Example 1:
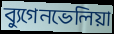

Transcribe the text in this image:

ব্যুগেনভেলিয়া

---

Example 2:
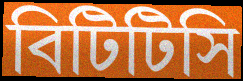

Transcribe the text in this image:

বিটিটিসি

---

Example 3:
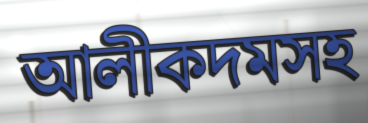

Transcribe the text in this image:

আলীকদমসহ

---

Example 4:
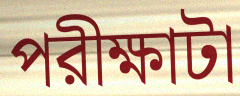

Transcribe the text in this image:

পরীক্ষাটা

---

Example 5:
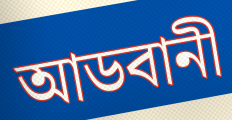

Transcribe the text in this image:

আডবানী